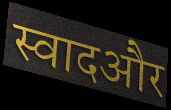
स्वादऔर